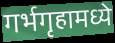
गर्भगृहामध्ये